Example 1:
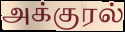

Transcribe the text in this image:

அக்குரல்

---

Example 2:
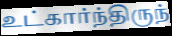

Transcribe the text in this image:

உட்கார்ந்திருந்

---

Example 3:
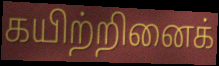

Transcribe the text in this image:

கயிற்றினைக்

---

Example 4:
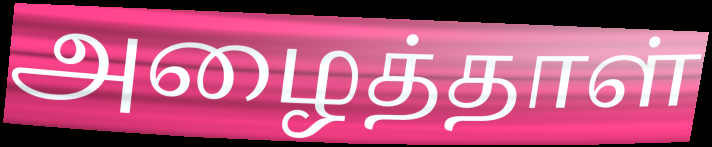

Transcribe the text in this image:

அழைத்தாள்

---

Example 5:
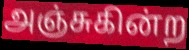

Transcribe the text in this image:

அஞ்சுகின்ற